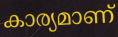
കാര്യമാണ്